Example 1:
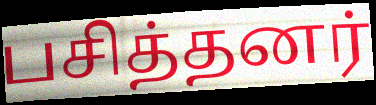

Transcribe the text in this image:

பசித்தனர்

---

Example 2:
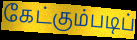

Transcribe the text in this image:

கேட்கும்படிப்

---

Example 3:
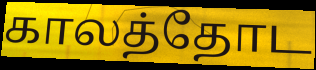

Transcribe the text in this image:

காலத்தோட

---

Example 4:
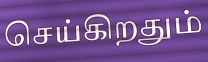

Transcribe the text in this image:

செய்கிறதும்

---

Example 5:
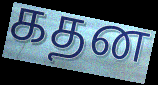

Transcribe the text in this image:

கதன